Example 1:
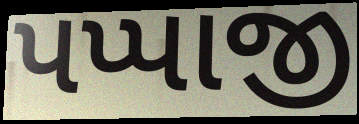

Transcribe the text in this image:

પપ્પાજી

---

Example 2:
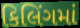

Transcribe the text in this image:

કિલિંગમાં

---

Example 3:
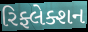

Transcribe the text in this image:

રિફ્લેક્શન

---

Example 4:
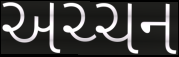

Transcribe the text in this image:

અચ્ચન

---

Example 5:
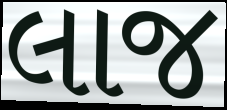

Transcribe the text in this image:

લાજ